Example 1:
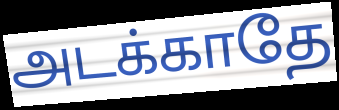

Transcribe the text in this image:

அடக்காதே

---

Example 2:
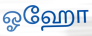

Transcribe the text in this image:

ஓஹோ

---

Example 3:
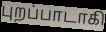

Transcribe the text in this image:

புறப்பாடாகி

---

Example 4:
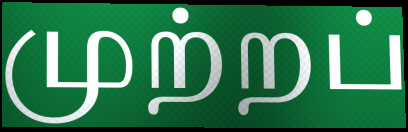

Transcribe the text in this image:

முற்றப்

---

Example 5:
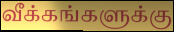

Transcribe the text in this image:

வீக்கங்களுக்கு